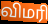
விமரி